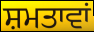
ਸ਼ਮਤਾਵਾਂ